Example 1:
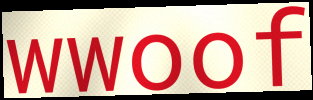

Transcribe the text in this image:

wwoof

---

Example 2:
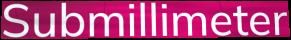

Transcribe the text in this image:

Submillimeter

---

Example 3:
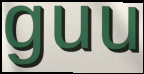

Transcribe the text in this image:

guu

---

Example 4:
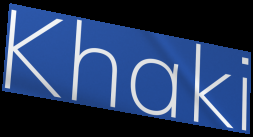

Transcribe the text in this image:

Khaki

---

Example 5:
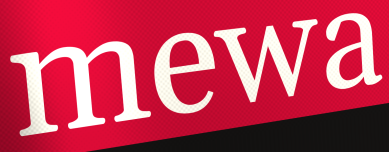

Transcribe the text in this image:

mewa